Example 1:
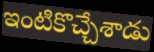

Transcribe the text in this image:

ఇంటికొచ్చేశాడు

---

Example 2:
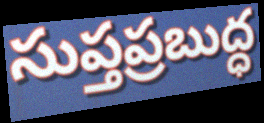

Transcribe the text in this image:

సుప్తప్రబుద్ధ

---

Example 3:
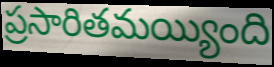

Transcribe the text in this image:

ప్రసారితమయ్యింది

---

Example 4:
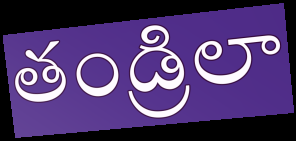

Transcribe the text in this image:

తండ్రిలా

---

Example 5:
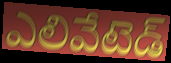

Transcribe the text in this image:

ఎలివేటెడ్